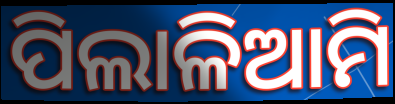
ପିଲାଳିଆମି